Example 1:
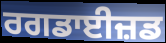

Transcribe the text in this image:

ਰਗਡਾਈਜ਼ਡ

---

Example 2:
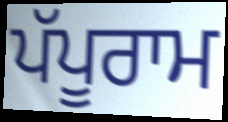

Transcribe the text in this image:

ਪੱਪੂਰਾਮ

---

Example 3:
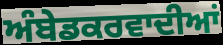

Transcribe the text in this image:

ਅੰਬੇਡਕਰਵਾਦੀਆਂ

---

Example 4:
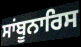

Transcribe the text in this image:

ਸਾਂਬੂਨਾਰਿਸ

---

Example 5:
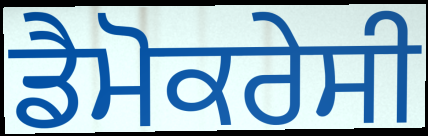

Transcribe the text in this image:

ਡੈਮੋਕਰੇਸੀ